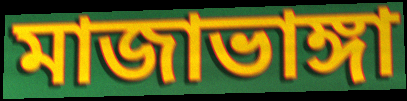
মাজাভাঙ্গা